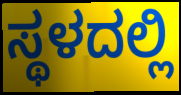
ಸ್ಥಳದಲ್ಲಿ